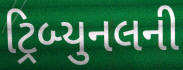
ટ્રિબ્યુનલની